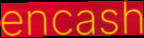
encash